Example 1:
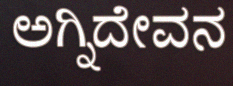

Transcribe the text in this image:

ಅಗ್ನಿದೇವನ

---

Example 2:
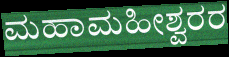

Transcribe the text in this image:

ಮಹಾಮಹೀಶ್ವರರ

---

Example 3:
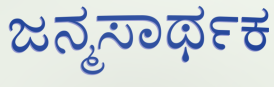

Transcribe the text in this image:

ಜನ್ಮಸಾರ್ಥಕ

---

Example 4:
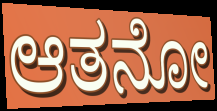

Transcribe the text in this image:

ಆತನೋ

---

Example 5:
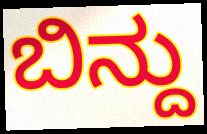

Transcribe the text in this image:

ಬಿನ್ದು